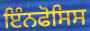
ਇੰਨਫੋਸਿਸ